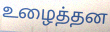
உழைத்தன